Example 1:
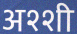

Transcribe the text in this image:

अश्शी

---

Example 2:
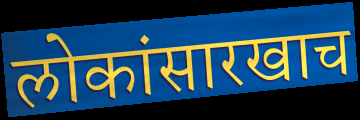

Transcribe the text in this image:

लोकांसारखाच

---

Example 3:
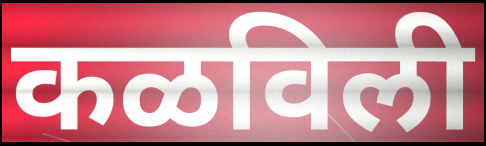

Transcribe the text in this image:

कळविली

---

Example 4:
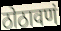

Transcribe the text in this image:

ठोठावणं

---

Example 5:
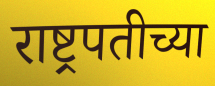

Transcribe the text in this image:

राष्ट्रपतीच्या